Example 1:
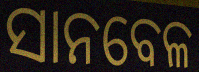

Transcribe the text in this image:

ସାନବେଳ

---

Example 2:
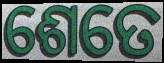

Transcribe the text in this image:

ଶେତେ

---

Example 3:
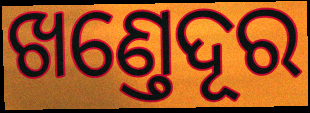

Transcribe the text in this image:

ଖଣ୍ତେଦୂର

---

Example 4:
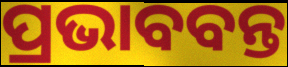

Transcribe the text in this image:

ପ୍ରଭାବବନ୍ତ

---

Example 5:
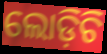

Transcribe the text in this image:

ଲୋଡ଼ିଚି